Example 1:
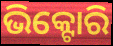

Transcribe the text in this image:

ଭିକ୍ଟୋରି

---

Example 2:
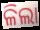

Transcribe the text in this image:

ଳିଲା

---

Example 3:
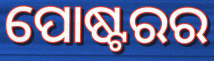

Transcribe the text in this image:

ପୋଷ୍ଟରର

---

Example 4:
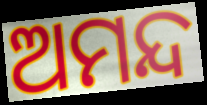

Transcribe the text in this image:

ଅମନ୍ଦ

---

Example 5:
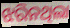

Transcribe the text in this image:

ଝରିନଥିଲା